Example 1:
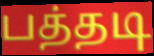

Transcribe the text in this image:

பத்தடி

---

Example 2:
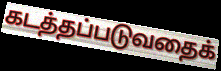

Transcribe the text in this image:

கடத்தப்படுவதைக்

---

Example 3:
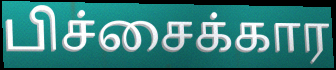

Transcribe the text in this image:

பிச்சைக்கார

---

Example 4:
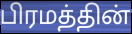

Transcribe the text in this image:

பிரமத்தின்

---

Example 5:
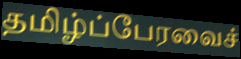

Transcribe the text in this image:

தமிழ்ப்பேரவைச்